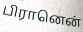
பிரானென்